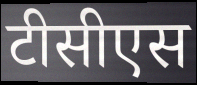
टीसीएस